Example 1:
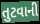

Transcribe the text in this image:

તુટવાની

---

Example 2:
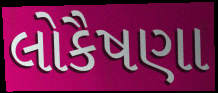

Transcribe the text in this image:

લોકૈષણા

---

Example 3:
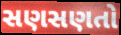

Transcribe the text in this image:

સણસણતો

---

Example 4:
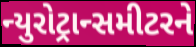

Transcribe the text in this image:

ન્યુરોટ્રાન્સમીટરને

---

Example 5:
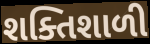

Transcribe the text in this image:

શક્તિશાળી